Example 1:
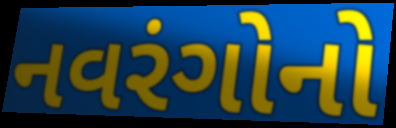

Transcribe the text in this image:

નવરંગોનો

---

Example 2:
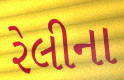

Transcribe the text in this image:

રેલીના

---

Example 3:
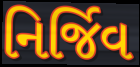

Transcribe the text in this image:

નિર્જિવ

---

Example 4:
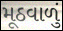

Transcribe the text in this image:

મૂઠવાળું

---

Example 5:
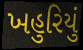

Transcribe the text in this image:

ખહુરિયું